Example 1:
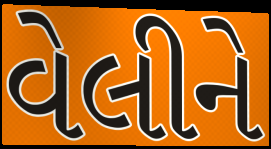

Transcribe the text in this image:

વેલીને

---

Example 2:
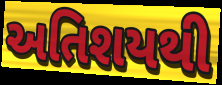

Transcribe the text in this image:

અતિશયથી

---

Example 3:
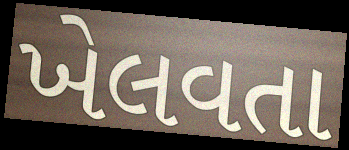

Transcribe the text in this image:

ખેલવતા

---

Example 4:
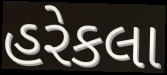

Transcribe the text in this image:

હરેકલા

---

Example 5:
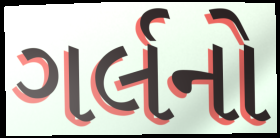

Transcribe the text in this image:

ગર્લનો